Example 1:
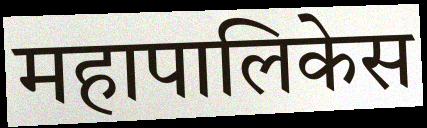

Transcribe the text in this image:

महापालिकेस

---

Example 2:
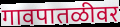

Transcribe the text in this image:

गावपातळीवर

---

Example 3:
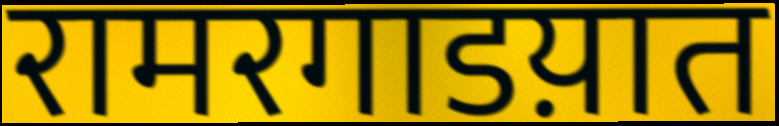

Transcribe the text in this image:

रामरगाडय़ात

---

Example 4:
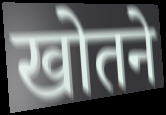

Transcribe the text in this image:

खोतने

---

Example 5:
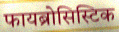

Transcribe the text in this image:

फायब्रोसिस्टिक